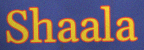
Shaala